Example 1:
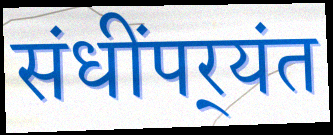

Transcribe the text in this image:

संधींपर्यंत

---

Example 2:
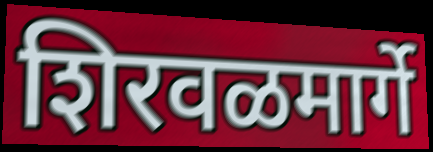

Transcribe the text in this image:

शिरवळमार्गे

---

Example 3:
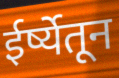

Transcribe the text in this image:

ईर्ष्येतून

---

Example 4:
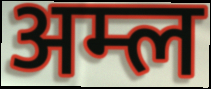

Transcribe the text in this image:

अम्ल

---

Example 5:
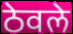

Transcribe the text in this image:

ठेवले